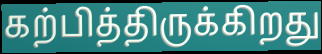
கற்பித்திருக்கிறது